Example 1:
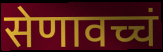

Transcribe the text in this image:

सेणावच्चं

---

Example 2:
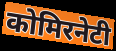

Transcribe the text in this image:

कोमिरनेटी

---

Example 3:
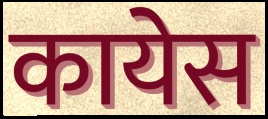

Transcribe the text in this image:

कायेस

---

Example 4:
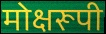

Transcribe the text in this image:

मोक्षरूपी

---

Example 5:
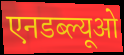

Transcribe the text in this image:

एनडब्ल्यूओ